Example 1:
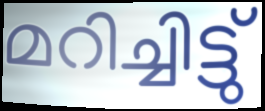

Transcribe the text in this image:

മറിച്ചിട്ടു്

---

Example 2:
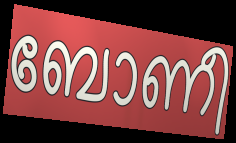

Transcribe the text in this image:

ബോണീ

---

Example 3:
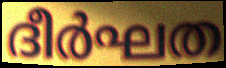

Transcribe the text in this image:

ദീർഘത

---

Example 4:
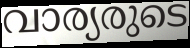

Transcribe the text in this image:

വാര്യരുടെ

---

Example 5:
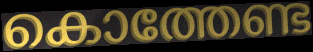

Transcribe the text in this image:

കൊത്തേണ്ട